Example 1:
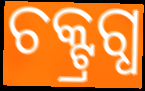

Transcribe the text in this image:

ଚକ୍ଟ୍ରଗ୍ଧ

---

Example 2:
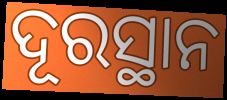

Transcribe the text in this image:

ଦୂରସ୍ଥାନ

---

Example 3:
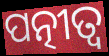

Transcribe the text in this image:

ପତ୍ନୀତ୍ୱ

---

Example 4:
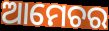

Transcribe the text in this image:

ଆମେଚର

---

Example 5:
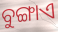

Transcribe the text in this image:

ବୁଙ୍ଗାଏ